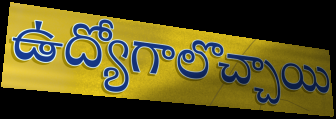
ఉద్యోగాలొచ్చాయి